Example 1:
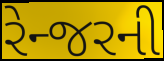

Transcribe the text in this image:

રેન્જરની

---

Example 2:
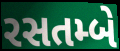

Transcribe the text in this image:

રસતમ્બે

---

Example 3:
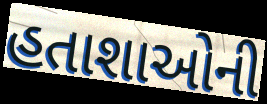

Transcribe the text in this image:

હતાશાઓની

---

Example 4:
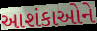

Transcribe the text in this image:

આશંકાઓને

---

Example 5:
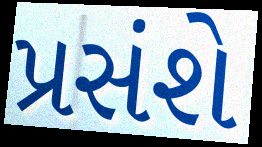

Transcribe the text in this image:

પ્રસંશે